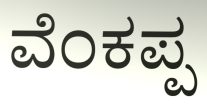
ವೆಂಕಪ್ಪ